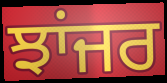
ਝਾਂਜਰ